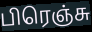
பிரெஞ்சு